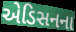
એડિસનના